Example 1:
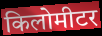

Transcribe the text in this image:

किलोमीटर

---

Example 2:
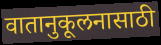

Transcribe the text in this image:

वातानुकूलनासाठी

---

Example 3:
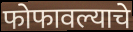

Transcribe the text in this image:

फोफावल्याचे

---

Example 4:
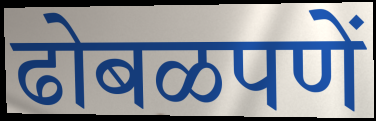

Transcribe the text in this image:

ढोबळपणें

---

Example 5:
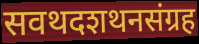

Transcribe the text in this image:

सवथदशथनसंग्रह